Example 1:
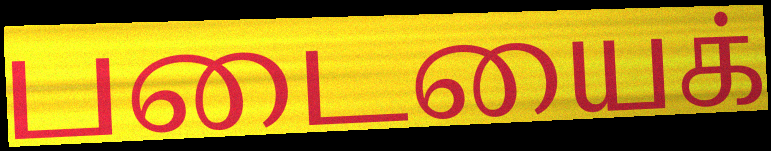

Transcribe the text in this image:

படையைக்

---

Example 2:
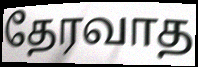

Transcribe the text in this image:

தேரவாத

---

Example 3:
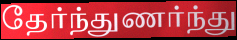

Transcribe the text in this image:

தேர்ந்துணர்ந்து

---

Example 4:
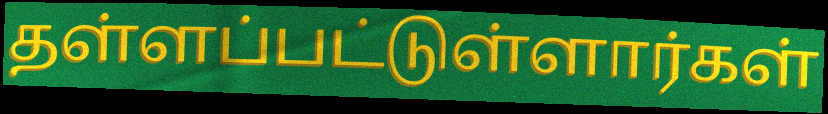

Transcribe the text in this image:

தள்ளப்பட்டுள்ளார்கள்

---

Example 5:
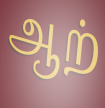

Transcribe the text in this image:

ஆற்